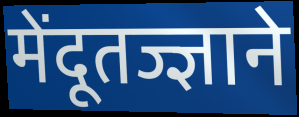
मेंदूतज्ज्ञाने